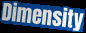
Dimensity